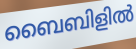
ബൈബിളിൽ